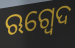
ଋଗ୍ବେଦ